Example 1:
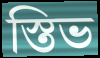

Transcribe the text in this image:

স্তিভ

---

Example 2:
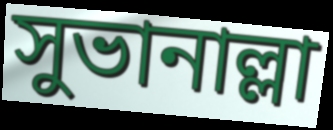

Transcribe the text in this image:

সুভানাল্লা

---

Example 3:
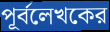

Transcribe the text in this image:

পূর্বলেখকের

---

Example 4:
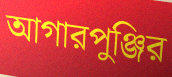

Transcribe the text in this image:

আগারপুঞ্জির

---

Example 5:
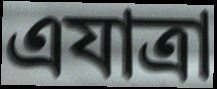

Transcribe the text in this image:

এযাত্রা